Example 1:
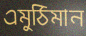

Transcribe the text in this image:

এমুঠিমান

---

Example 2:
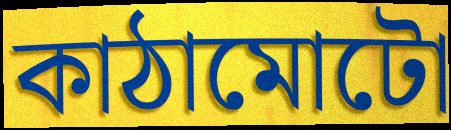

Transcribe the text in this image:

কাঠামোটো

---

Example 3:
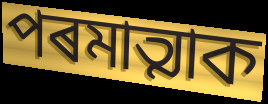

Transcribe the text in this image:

পৰমাত্মাক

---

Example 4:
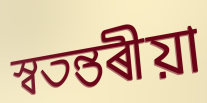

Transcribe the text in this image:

স্বতন্তৰীয়া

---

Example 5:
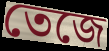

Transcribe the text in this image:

তেজে